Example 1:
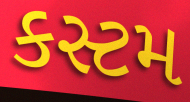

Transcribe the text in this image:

કસ્ટમ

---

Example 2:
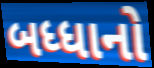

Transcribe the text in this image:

બધ્ધાનો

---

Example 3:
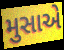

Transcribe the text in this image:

મુસાએ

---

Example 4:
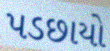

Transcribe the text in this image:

પડછાયો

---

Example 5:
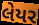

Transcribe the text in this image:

લેયર